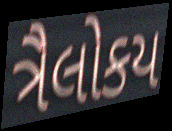
ત્રૈલોકય